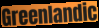
Greenlandic